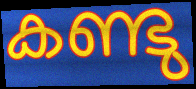
കണ്ടു